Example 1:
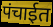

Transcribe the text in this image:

पंचाईत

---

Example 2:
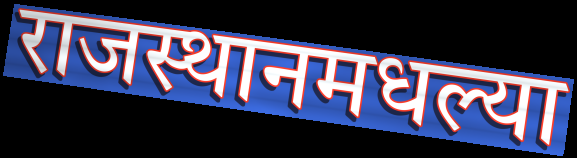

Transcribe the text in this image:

राजस्थानमधल्या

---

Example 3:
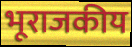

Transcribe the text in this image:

भूराजकीय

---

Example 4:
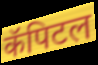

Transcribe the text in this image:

कॅपिटल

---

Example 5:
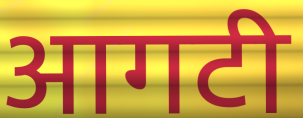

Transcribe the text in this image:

आगटी